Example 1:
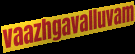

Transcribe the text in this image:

vaazhgavalluvam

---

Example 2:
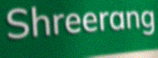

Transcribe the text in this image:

Shreerang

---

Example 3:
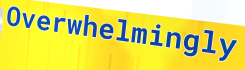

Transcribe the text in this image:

Overwhelmingly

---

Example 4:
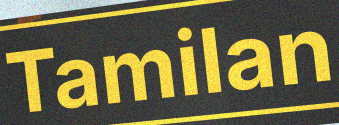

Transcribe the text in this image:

Tamilan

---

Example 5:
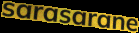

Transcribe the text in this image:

sarasarane